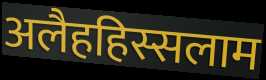
अलैहहिस्सलाम